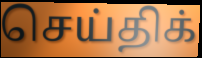
செய்திக்